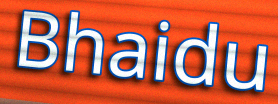
Bhaidu